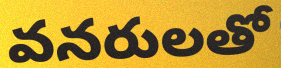
వనరులతో